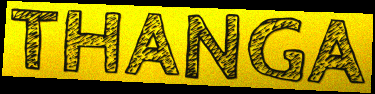
THANGA